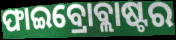
ଫାଇବ୍ରୋବ୍ଲାଷ୍ଟର